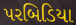
પરબિડિયા